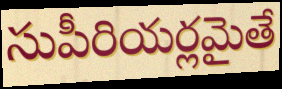
సుపీరియర్లమైతే